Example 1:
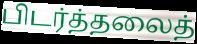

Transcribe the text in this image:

பிடர்த்தலைத்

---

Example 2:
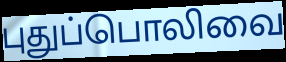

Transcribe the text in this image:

புதுப்பொலிவை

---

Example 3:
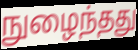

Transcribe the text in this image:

நுழைந்தது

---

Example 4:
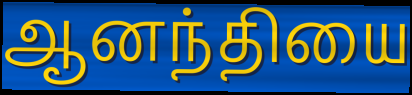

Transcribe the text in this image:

ஆனந்தியை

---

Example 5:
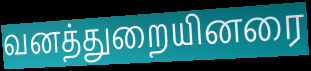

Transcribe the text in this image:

வனத்துறையினரை